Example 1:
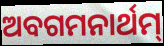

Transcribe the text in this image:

ଅବଗମନାର୍ଥମ୍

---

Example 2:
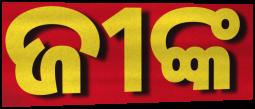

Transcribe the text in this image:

ଜୀଙ୍କ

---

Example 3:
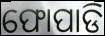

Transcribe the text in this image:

ଫୋପାଡି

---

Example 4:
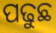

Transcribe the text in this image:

ପଢୁଛ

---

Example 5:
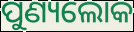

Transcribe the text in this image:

ପୁଣ୍ୟଲୋକ